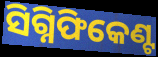
ସିଗ୍ନିଫିକେଣ୍ଟ